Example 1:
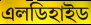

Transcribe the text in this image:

এলডিহাইড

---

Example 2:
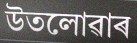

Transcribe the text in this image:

উতলোৱাৰ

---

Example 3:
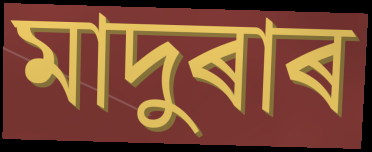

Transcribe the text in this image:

মাদুৰাৰ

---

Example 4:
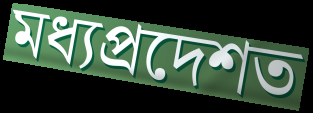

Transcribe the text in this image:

মধ্যপ্ৰদেশত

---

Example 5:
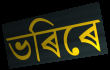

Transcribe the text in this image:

ভৰিৰে